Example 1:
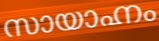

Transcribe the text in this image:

സായാഹ്നം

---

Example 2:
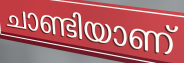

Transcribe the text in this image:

ചാണ്ടിയാണ്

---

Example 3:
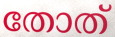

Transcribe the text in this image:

തോത്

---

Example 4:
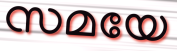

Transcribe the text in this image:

സമയേ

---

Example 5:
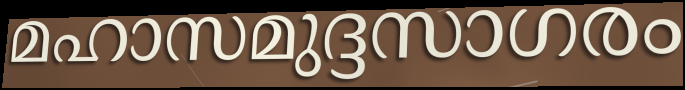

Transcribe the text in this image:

മഹാസമുദ്ദസാഗരം